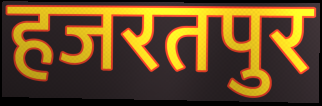
हजरतपुर